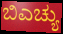
ಬಿಎಚ್ಯು